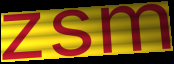
zsm